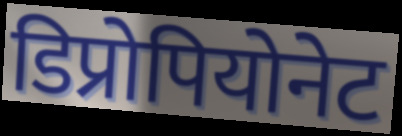
डिप्रोपियोनेट